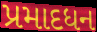
પ્રમાદધન